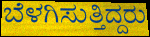
ಬೆಳಗಿಸುತ್ತಿದ್ದರು